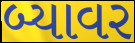
બ્યાવર